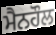
ਮੈਨਹੌਲ